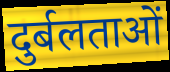
दुर्बलताओं